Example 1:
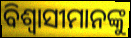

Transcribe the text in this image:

ବିଶ୍ୱାସୀମାନଙ୍କୁ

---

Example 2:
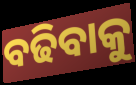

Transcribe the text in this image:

ବଢିବାକୁ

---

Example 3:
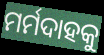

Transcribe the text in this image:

ମର୍ମଦାହକୁ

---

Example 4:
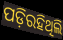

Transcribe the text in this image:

ପଡ଼ିରହିଥିଲି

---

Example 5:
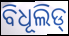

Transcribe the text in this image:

ବିଧୂଲିଡ୍